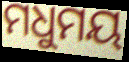
ମଧୁମୟ